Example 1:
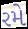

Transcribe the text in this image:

રમે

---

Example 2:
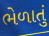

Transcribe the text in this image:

ભેળાતું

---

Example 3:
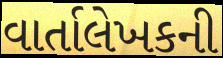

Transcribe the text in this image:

વાર્તાલેખકની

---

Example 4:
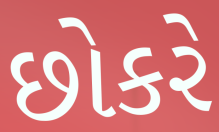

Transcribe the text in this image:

છોકરે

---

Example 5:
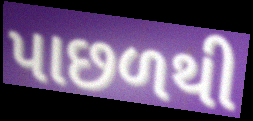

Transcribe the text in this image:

પાછળથી